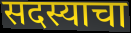
सदस्याचा